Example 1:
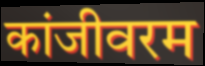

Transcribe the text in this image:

कांजीवरम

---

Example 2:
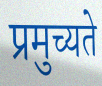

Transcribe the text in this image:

प्रमुच्यते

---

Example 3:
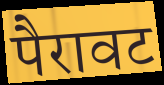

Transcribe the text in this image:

पैरावट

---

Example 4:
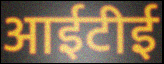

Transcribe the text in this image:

आईटीई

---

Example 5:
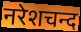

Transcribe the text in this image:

नरेशचन्द